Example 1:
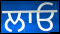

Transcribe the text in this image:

ਲਾਓ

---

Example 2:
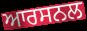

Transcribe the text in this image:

ਆਰਸਨਲ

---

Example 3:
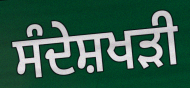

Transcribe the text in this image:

ਸੰਦੇਸ਼ਖੜੀ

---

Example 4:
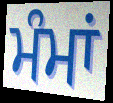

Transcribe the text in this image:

ਮੰਮਾਂ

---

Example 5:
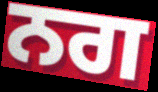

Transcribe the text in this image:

ਨਗ